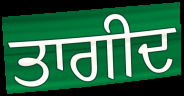
ਤਾਗੀਦ